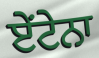
ਏਂਟੇਨਾ